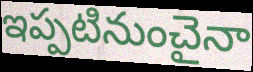
ఇప్పటినుంచైనా